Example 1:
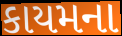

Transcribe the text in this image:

કાયમના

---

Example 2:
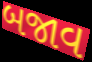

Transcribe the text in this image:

બજાવ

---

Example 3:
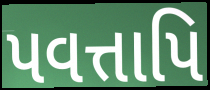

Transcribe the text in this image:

પવત્તાપિ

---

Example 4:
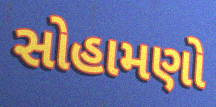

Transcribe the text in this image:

સોહામણો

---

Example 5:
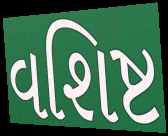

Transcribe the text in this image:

વશિષ્ટ